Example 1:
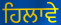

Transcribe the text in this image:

ਹਿਲਾਵੇ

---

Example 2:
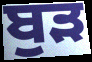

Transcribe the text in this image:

ਬੁੜ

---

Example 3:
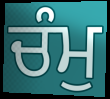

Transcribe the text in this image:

ਚੰਮੁ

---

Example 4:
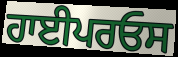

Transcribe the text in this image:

ਹਾਈਪਰਓਸ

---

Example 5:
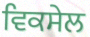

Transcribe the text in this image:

ਵਿਕਸੇਲ